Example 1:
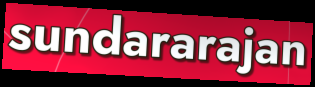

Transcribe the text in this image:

sundararajan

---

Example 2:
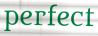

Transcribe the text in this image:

perfect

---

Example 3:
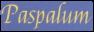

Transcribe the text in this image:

Paspalum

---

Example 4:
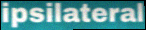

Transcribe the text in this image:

ipsilateral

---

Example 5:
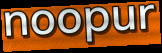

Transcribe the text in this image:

noopur